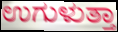
ಉಗುಳುತ್ತಾ